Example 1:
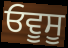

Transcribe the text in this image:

ਓਵੂਸੂ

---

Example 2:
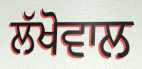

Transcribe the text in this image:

ਲੱਖੋਵਾਲ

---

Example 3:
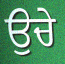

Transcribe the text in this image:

ਉਚੇ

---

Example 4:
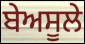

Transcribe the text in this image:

ਬੇਅਸੂਲੇ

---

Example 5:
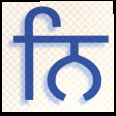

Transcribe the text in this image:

ਨਿ